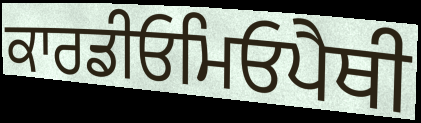
ਕਾਰਡੀਓਮਿਓਪੈਥੀ